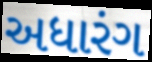
અધારંગ